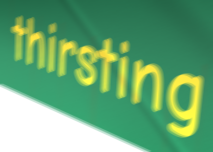
thirsting